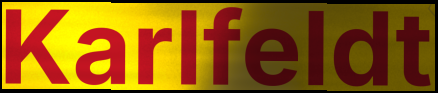
Karlfeldt